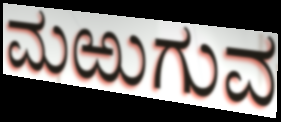
ಮಱುಗುವ